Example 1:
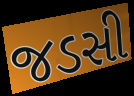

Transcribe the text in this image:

જડસી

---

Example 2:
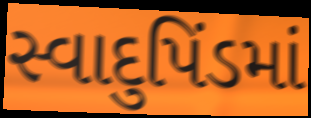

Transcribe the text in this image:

સ્વાદુપિંડમાં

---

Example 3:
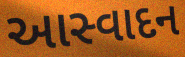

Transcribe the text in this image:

આસ્વાદન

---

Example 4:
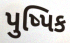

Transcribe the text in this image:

પુષ્પિક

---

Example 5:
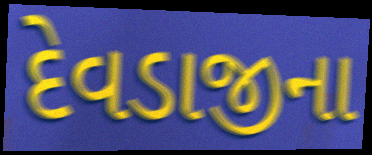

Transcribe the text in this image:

દેવડાજીના